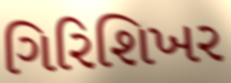
ગિરિશિખર